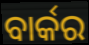
ବାର୍କର